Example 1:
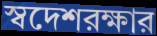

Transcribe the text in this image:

স্বদেশরক্ষার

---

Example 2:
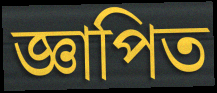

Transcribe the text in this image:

জ্ঞাপিত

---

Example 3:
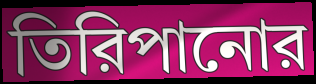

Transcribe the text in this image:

তিরিপানোর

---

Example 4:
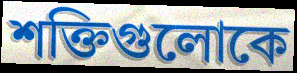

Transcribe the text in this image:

শক্তিগুলোকে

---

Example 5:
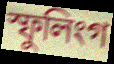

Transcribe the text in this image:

স্ফুলিংগ